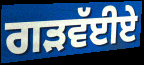
ਗੜਵੱਈਏ